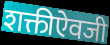
शक्तीऐवजी